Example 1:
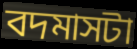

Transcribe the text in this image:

বদমাসটা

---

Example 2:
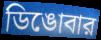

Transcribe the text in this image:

ডিঙোবার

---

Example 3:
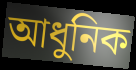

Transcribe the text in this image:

আধুনিক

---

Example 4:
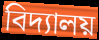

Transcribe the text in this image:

বিদ্যালয়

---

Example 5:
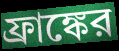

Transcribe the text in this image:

ফ্রাঙ্কের